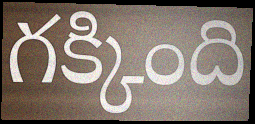
గక్కింది